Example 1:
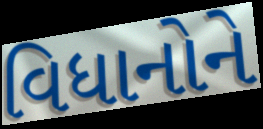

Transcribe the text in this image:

વિધાનોને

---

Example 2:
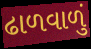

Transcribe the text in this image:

ઢાળવાળું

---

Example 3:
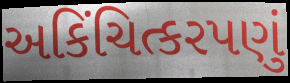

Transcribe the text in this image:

અકિંચિત્કરપણું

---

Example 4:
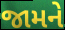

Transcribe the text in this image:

જામને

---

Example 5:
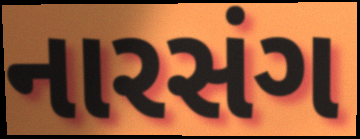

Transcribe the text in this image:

નારસંગ